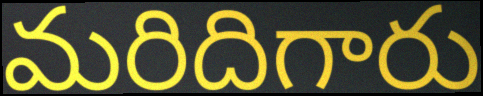
మరిదిగారు